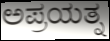
ಅಪ್ರಯತ್ನ